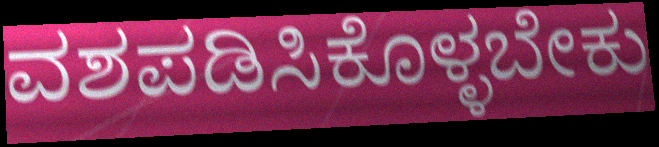
ವಶಪಡಿಸಿಕೊಳ್ಳಬೇಕು